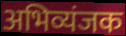
अभिव्यंजक